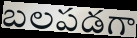
బలపడగా